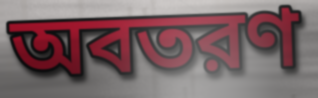
অবতরণ